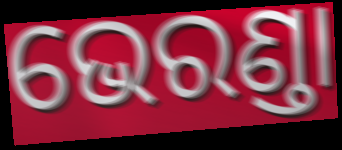
ଭେରଣ୍ଡା